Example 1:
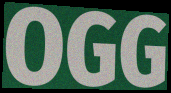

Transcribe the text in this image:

OGG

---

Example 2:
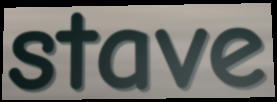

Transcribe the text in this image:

stave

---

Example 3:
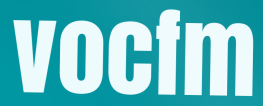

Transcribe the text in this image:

vocfm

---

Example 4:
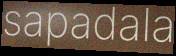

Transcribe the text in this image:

sapadala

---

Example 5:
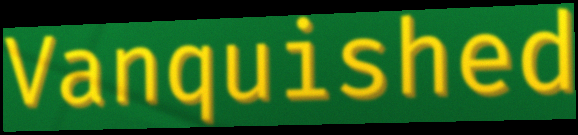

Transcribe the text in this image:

Vanquished